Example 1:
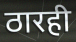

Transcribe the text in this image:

ठारही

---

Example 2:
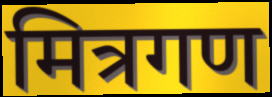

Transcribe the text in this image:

मित्रगण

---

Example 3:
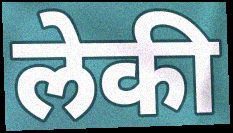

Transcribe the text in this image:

लेकी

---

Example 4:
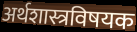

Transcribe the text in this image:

अर्थशास्त्रविषयक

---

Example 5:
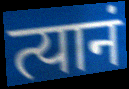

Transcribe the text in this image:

त्यानं